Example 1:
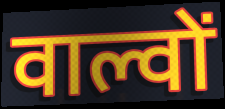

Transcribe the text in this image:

वाल्वों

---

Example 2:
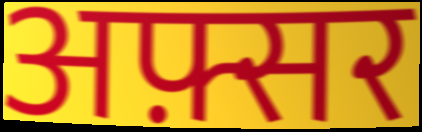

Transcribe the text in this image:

अफ़्सर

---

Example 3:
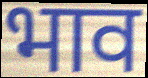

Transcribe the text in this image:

भाव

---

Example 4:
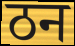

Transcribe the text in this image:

ठन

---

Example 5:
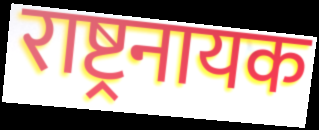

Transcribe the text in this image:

राष्ट्रनायक